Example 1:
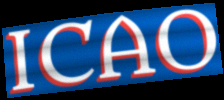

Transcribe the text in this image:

ICAO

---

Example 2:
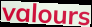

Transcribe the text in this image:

valours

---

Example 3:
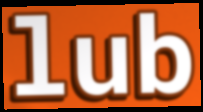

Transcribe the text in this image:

lub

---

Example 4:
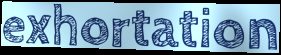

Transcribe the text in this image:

exhortation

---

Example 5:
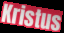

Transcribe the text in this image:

Kristus